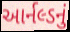
આર્નલ્ડનું